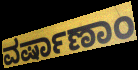
ವರ್ಷಾಣಾಂ